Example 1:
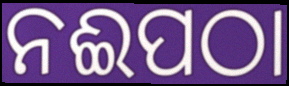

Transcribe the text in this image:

ନଈପଠା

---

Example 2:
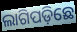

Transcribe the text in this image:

ଲାଗିପଡ଼ିଛେ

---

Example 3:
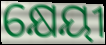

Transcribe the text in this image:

କ୍ଷେୟୀ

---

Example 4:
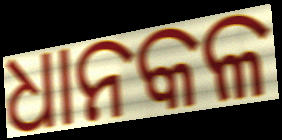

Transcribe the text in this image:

ଧାନକଳ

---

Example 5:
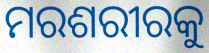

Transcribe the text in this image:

ମରଶରୀରକୁ